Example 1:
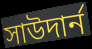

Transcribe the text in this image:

সাউদার্ন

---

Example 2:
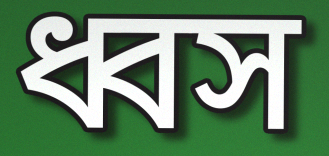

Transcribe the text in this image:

ধ্বস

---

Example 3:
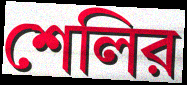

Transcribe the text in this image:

শেলির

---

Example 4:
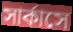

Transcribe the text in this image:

সার্কাসে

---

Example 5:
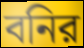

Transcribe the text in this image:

বনির